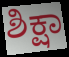
ಶಿಕ್ಷಾ